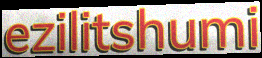
ezilitshumi